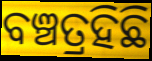
ବଞ୍ଚତ୍ରହିଛି